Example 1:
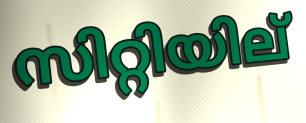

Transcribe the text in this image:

സിറ്റിയില്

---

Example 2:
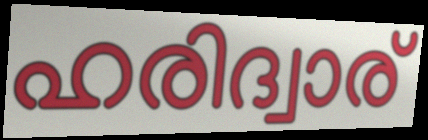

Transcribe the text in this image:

ഹരിദ്വാര്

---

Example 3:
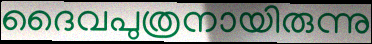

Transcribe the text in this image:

ദൈവപുത്രനായിരുന്നു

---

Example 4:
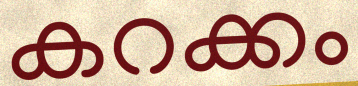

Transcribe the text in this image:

കറക്കം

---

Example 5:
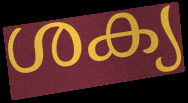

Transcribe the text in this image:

ശക്യ